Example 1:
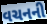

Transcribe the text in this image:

વચનની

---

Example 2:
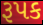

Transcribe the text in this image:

રૂપક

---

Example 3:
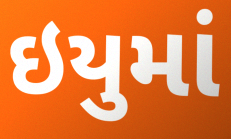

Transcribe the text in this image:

ઇયુમાં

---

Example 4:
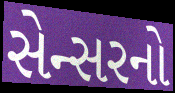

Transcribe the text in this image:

સેન્સરનો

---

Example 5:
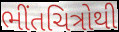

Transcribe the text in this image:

ભીંતચિત્રોથી